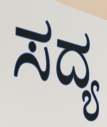
ಸದ್ಯ